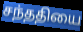
சந்ததியை